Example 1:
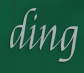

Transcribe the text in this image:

ding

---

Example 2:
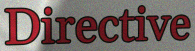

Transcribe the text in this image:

Directive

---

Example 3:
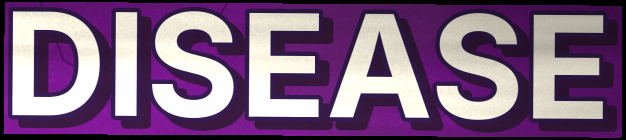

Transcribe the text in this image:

DISEASE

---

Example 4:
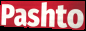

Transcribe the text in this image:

Pashto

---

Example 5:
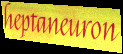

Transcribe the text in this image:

heptaneuron